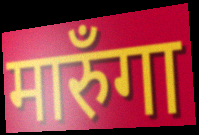
मारुँगा